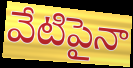
వేటిపైనా